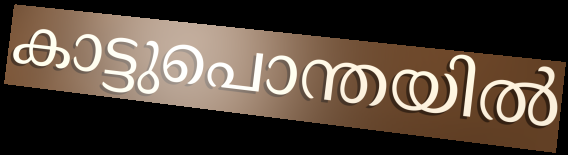
കാട്ടുപൊന്തയിൽ